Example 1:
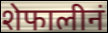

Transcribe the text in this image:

शेफालीनं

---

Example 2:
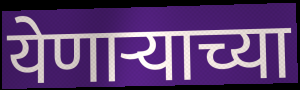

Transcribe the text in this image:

येणाऱ्याच्या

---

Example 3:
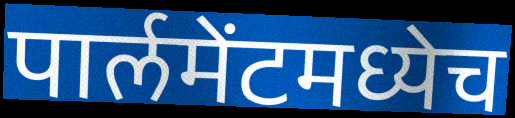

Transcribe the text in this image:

पार्लमेंटमध्येच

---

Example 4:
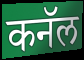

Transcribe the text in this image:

कनॅल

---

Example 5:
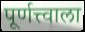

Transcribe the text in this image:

पूर्णत्त्वाला